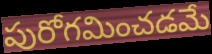
పురోగమించడమే